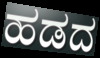
ಹಡದ